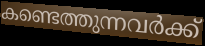
കണ്ടെത്തുന്നവർക്ക്